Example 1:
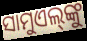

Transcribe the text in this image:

ସାମୁଏଲ୍‌ଙ୍କୁ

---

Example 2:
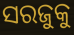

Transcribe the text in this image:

ସରଜୁକୁ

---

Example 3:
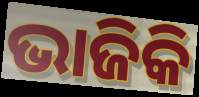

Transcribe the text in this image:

ଭାଜିକି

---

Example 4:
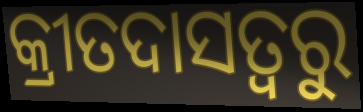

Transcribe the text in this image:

କ୍ରୀତଦାସତ୍ୱରୁ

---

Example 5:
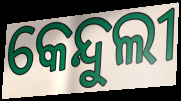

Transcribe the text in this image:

କେନ୍ଦୁଲୀ